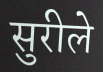
सुरीले